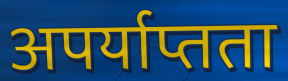
अपर्याप्तता